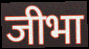
जीभा